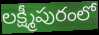
లక్ష్మీపురంలో